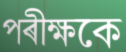
পৰীক্ষকে